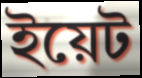
ইয়েট